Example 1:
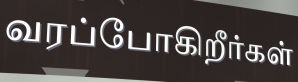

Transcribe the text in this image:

வரப்போகிறீர்கள்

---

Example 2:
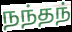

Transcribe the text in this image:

நந்தந்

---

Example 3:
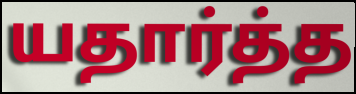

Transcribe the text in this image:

யதார்த்த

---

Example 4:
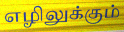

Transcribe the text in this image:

எழிலுக்கும்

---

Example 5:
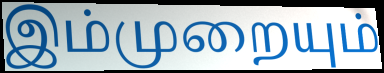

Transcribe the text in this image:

இம்முறையும்